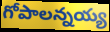
గోపాలన్నయ్య